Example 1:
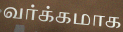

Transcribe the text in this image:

வர்க்கமாக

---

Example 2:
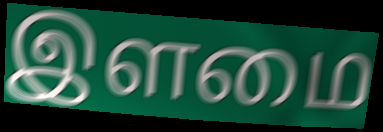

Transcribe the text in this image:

இளமை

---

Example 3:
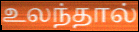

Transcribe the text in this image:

உலந்தால்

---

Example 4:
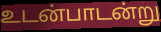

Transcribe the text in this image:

உடன்பாடன்று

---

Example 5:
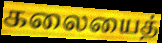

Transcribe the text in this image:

கலையைத்